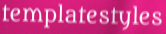
templatestyles